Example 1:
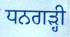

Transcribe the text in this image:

ਧਨਗੜ੍ਹੀ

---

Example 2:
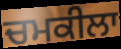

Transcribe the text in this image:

ਚਮਕੀਲਾ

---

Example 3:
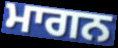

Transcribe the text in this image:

ਮਾਗਨ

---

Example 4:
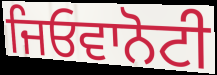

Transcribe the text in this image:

ਜਿਓਵਾਨੋਟੀ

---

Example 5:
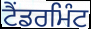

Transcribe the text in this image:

ਟੈਂਡਰਮਿੰਟ